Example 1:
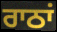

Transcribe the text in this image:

ਰਾਠਾਂ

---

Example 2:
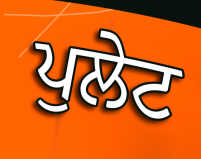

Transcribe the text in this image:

ਪੁਲੇਟ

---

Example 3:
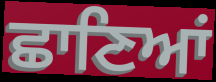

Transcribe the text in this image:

ਛਾਣਿਆਂ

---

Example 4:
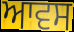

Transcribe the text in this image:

ਆਵਸ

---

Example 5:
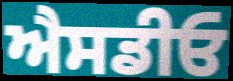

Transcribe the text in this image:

ਐਸਡੀਓ